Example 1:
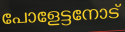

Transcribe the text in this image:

പോളേട്ടനോട്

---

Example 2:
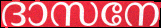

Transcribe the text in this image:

ദാസനേ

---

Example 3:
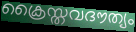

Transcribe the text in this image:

ക്രൈസ്തവദൗത്യം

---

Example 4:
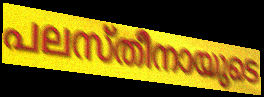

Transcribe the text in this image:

പലസ്തീനായുടെ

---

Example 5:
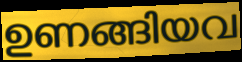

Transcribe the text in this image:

ഉണങ്ങിയവ